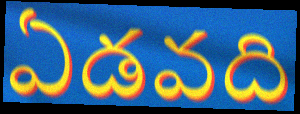
ఏడవది